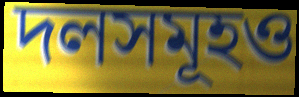
দলসমূহও